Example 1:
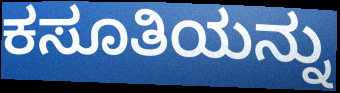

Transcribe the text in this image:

ಕಸೂತಿಯನ್ನು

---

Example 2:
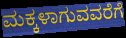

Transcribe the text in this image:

ಮಕ್ಕಳಾಗುವವರೆಗೆ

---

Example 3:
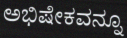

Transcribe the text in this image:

ಅಭಿಷೇಕವನ್ನೂ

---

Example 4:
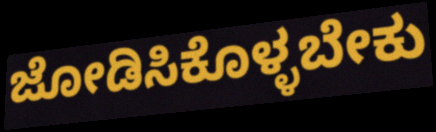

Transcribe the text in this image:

ಜೋಡಿಸಿಕೊಳ್ಳಬೇಕು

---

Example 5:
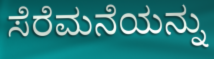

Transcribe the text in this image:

ಸೆರೆಮನೆಯನ್ನು